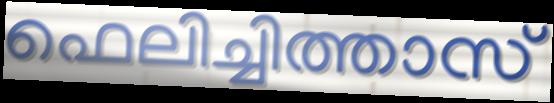
ഫെലിച്ചിത്താസ്